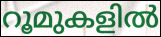
റൂമുകളിൽ